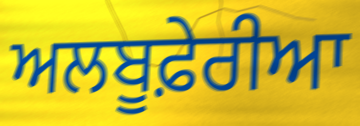
ਅਲਬੂਫ਼ੇਰੀਆ